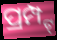
ପ୍ରମ୍ପ୍ଟ୍